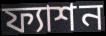
ফ্যাশন